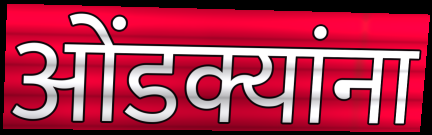
ओंडक्यांना